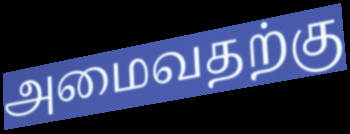
அமைவதற்கு